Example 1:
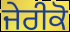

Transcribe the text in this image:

ਜੇਰੀਕੋ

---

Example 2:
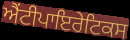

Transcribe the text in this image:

ਐਂਟੀਪਾਇਰੇਟਿਕਸ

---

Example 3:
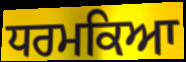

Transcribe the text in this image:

ਧਰਮਕਿਆ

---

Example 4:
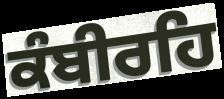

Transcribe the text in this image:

ਕੰਬੀਰਹਿ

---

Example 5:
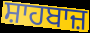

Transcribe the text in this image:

ਸ਼ਾਹਬਾਜ਼